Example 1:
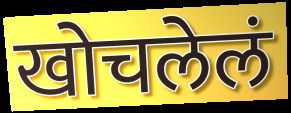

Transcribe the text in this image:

खोचलेलं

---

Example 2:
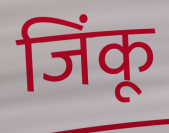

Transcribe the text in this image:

जिंकू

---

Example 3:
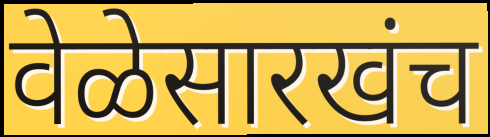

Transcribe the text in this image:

वेळेसारखंच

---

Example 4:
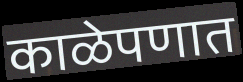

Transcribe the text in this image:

काळेपणात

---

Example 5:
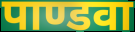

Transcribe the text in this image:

पाण्डवा